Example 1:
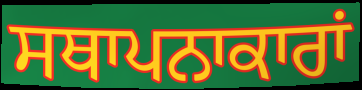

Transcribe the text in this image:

ਸਥਾਪਨਾਕਾਰਾਂ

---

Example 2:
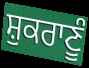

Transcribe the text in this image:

ਸ਼ੁਕਰਾਣੂੰ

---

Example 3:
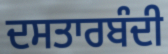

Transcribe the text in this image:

ਦਸਤਾਰਬੰਦੀ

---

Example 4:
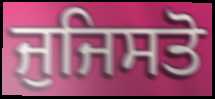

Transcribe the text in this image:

ਜੁਜਿਸਤੋ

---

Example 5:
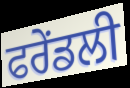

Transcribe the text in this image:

ਫਰੇਂਡਲੀ